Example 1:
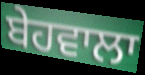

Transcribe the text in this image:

ਬੇਹਵਾਲਾ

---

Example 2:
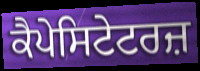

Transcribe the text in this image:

ਕੈਪੇਸਿਟੇਟਰਜ਼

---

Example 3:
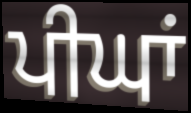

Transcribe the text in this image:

ਪੀਘਾਂ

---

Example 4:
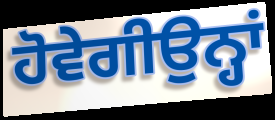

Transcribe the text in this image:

ਹੋਵੇਗੀਉਨ੍ਹਾਂ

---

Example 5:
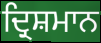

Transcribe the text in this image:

ਦ੍ਰਿਸ਼ਮਾਨ